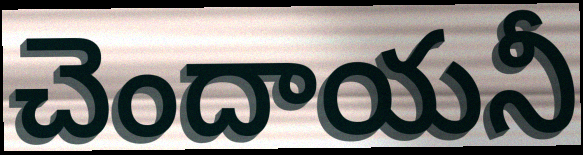
చెందాయనీ